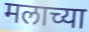
मलाच्या